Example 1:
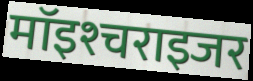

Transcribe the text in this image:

मॉइश्चराइजर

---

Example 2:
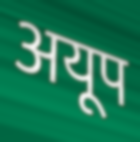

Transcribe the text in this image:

अयूप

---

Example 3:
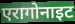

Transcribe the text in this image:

एरागोनाइट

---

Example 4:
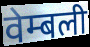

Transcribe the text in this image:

वेम्बली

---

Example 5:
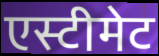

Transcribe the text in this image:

एस्टीमेट